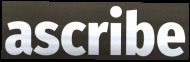
ascribe